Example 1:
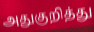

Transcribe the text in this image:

அதுகுறித்து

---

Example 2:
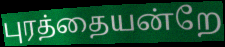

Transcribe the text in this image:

புரத்தையன்றே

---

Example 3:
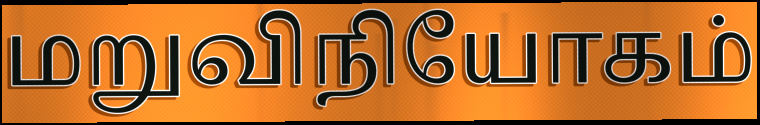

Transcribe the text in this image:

மறுவிநியோகம்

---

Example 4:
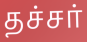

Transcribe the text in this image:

தச்சர்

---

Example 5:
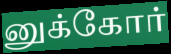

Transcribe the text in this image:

னுக்கோர்